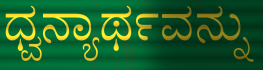
ಧ್ವನ್ಯಾರ್ಥವನ್ನು